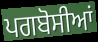
ਪਗਬੋਸੀਆਂ